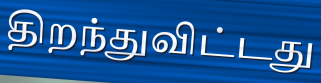
திறந்துவிட்டது